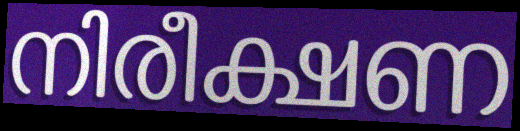
നിരീക്ഷണ